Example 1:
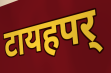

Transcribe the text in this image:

टायहपर्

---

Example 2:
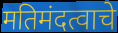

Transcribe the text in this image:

मतिमंदत्वाचे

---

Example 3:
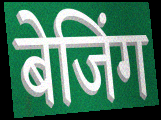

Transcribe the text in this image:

बेजिंग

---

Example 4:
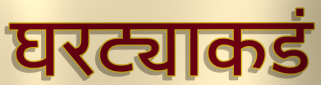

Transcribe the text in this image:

घरट्याकडं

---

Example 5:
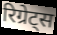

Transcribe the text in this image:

रिग्रेट्स